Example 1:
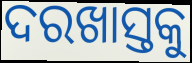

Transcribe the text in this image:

ଦରଖାସ୍ତକୁ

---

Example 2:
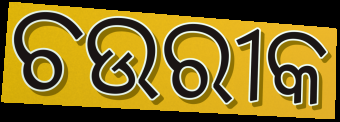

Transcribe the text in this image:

ଚଉରୀକ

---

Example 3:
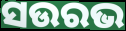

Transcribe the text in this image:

ସଉରଭ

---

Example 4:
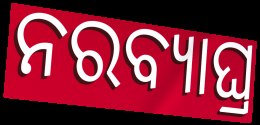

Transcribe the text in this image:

ନରବ୍ୟାଘ୍ର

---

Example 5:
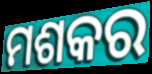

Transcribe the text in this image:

ମଶକର